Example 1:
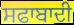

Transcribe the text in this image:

ਸਫਾਬਾਦੀ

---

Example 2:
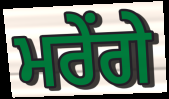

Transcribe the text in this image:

ਮਰੇਂਗੇ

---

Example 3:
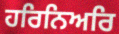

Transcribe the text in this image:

ਹਰਿਨਿਅਰਿ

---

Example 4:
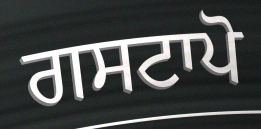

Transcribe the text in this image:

ਗਸਟਾਪੋ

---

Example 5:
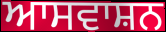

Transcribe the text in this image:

ਆਸਵਾਸ਼ਨ